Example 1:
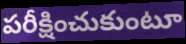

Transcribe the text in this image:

పరీక్షించుకుంటూ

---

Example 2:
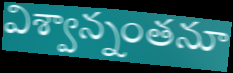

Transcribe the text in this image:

విశ్వాన్నంతనూ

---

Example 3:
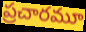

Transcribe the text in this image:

ప్రచారమూ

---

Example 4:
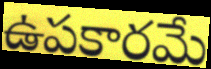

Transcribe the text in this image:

ఉపకారమే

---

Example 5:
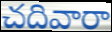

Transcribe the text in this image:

చదివారా